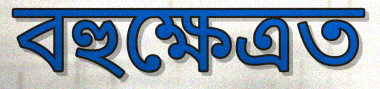
বহুক্ষেত্ৰত